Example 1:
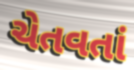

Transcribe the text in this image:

ચેતવતાં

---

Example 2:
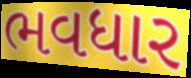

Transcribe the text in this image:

ભવધાર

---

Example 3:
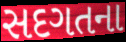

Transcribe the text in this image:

સદગતના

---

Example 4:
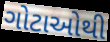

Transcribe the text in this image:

ગોટાઓથી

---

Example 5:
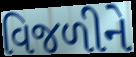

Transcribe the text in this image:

વિજળીને